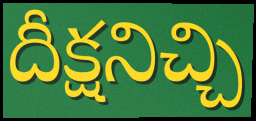
దీక్షనిచ్చి